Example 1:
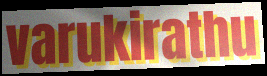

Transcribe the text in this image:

varukirathu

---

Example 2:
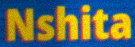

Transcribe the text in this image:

Nshita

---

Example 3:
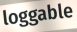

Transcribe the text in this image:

loggable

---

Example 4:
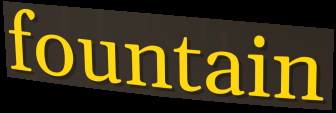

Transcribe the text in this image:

fountain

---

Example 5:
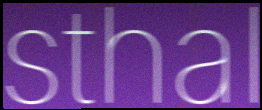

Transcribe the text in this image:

sthal